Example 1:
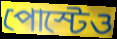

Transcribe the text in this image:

পোস্টেও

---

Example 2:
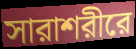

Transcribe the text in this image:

সারাশরীরে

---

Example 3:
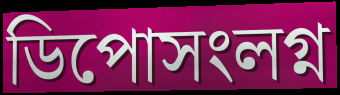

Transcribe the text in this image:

ডিপোসংলগ্ন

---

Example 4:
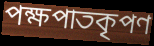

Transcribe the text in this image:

পক্ষপাতকৃপণ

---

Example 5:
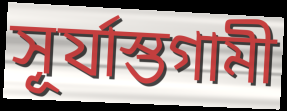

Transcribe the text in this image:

সূর্যাস্তগামী